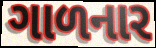
ગાળનાર